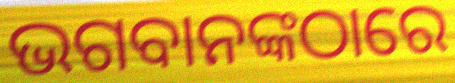
ଭଗବାନଙ୍କଠାରେ